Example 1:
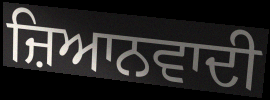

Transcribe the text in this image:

ਜ਼ਿਆਨਵਾਦੀ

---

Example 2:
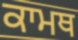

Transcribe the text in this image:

ਕਾਮਥ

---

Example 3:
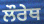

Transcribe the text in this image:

ਲੌਰੇਥ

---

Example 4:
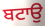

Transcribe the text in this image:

ਬਟਾਉ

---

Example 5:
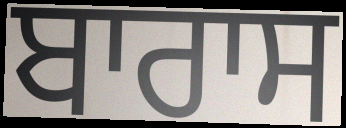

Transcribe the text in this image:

ਬਾਰਾਸ